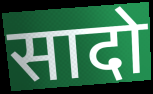
सादो